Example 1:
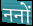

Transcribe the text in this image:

ननों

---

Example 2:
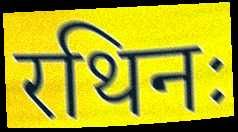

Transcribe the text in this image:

रथिनः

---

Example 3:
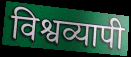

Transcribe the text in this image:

विश्वव्यापी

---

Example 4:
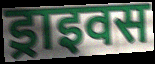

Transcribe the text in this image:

ड्राइवस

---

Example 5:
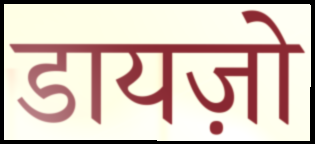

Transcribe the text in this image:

डायज़ो